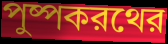
পুষ্পকরথের